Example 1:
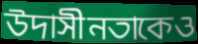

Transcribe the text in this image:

উদাসীনতাকেও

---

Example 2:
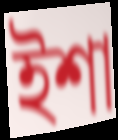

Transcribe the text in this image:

ইশা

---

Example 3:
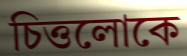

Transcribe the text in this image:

চিত্তলোকে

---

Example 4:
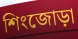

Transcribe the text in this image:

শিংজোড়া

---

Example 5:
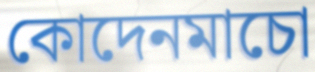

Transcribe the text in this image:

কোদেনমাচো